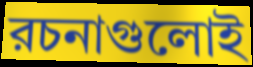
রচনাগুলোই